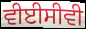
ਵੀਈਸੀਵੀ